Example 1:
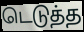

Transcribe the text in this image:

டெடுத்த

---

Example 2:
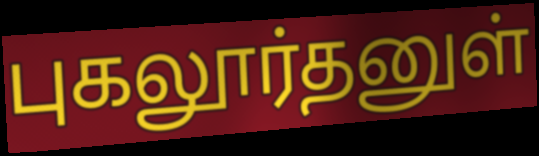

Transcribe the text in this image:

புகலூர்தனுள்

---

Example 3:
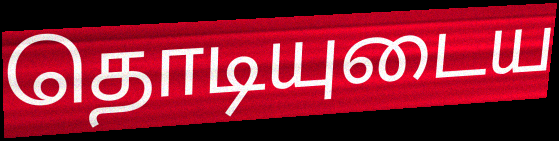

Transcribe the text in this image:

தொடியுடைய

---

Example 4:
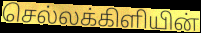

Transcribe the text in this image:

செல்லக்கிளியின்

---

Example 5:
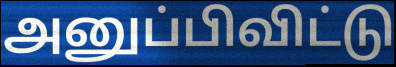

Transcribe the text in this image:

அனுப்பிவிட்டு